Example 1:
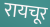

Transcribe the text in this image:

रायचूर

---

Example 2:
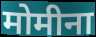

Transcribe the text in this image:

मोमीना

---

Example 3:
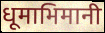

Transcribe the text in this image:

धूमाभिमानी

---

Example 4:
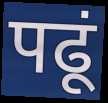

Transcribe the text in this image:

पढूं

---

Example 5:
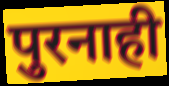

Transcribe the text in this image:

पुरनाही